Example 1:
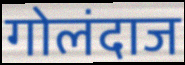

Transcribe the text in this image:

गोलंदाज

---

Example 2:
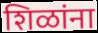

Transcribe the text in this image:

शिळांना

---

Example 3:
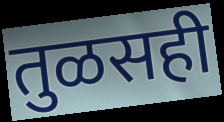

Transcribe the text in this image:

तुळसही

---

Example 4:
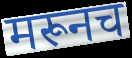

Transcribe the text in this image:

मरूनच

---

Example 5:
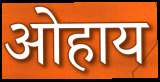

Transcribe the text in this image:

ओहाय